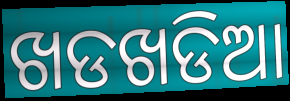
ଖଡଖଡିଆ